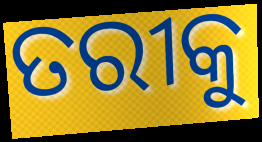
ତରୀକୁ